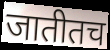
जातीतच